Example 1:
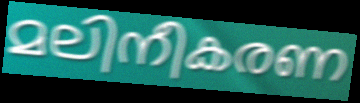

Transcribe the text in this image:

മലിനീകരണ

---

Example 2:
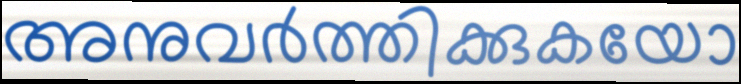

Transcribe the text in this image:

അനുവർത്തിക്കുകയോ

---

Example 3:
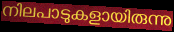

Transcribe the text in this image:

നിലപാടുകളായിരുന്നു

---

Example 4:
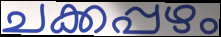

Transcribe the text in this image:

ചക്കപ്പഴം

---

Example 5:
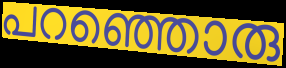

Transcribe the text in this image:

പറഞ്ഞൊരു